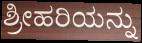
ಶ್ರೀಹರಿಯನ್ನು